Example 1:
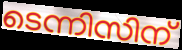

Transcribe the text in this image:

ടെന്നിസിന്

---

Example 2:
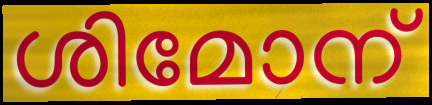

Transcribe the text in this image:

ശിമോന്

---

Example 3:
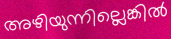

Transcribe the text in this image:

അഴിയുന്നില്ലെങ്കിൽ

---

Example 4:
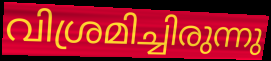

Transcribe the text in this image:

വിശ്രമിച്ചിരുന്നു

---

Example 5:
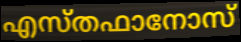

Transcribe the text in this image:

എസ്തഫാനോസ്